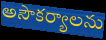
అసౌకర్యాలను